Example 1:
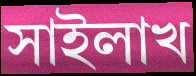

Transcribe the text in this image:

সাইলাখ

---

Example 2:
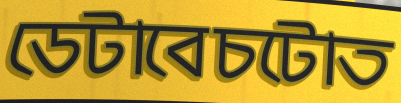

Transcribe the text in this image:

ডেটাবেচটোত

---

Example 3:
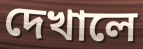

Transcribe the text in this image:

দেখালে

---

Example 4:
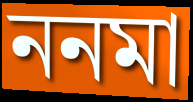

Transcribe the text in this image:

ননমা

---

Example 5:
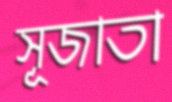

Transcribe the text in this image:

সূজাতা